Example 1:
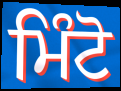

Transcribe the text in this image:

ਮਿੰਟੋ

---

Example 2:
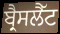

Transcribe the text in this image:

ਬ੍ਰੈਸਲੈੱਟ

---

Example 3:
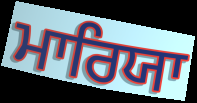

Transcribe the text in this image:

ਮਾਰਿਯਾ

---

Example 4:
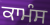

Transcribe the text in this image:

ਕਾਮੰਸ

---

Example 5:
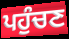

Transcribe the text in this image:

ਪਹੁੰਚਣ